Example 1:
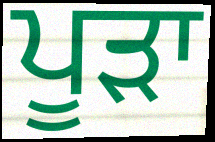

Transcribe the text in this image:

ਪੂੜਾ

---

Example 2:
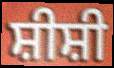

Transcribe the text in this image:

ਸ਼ੀਸ਼ੀ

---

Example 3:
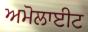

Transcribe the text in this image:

ਅਮੋਲਾਈਟ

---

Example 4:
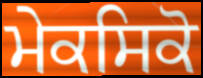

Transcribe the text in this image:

ਮੇਕਸਿਕੋ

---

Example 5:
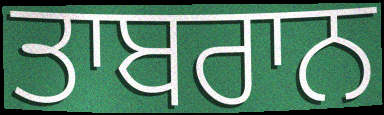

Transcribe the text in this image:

ਤਾਬਰਾਨ